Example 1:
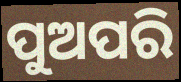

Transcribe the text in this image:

ପୁଅପରି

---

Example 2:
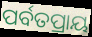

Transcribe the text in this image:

ପର୍ବତପ୍ରାୟ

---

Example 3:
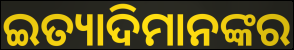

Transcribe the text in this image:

ଇତ୍ୟାଦିମାନଙ୍କର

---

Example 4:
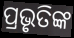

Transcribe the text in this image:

ପ୍ରଭୃତିଙ୍କ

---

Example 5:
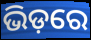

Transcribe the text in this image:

ଭିଡ଼ରେ